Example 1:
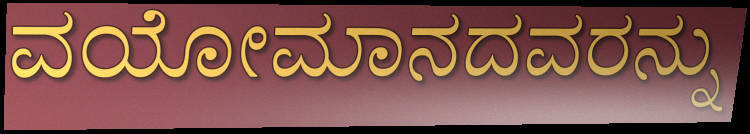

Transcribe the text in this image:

ವಯೋಮಾನದವರನ್ನು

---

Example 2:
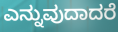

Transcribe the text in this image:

ಎನ್ನುವುದಾದರೆ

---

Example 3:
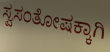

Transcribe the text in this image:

ಸ್ವಸಂತೋಷಕ್ಕಾಗಿ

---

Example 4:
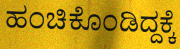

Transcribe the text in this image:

ಹಂಚಿಕೊಂಡಿದ್ದಕ್ಕೆ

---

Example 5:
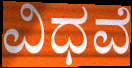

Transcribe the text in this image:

ವಿಧವೆ